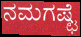
ನಮಗಷ್ಟೆ